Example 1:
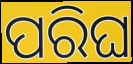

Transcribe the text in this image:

ପରିଘ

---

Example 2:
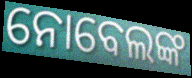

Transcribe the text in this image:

ନୋବେଲଙ୍କ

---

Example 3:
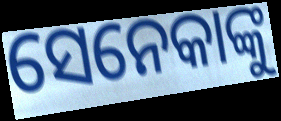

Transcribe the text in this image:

ସେନେକାଙ୍କୁ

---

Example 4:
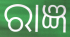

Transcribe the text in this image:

ରାଜ୍ଞ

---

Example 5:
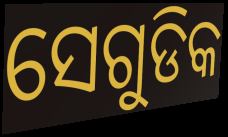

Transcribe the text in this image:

ସେଗୁଡିକ